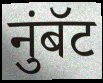
नुंबॅट